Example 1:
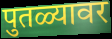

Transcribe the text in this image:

पुतळ्यावर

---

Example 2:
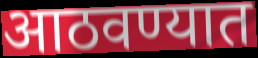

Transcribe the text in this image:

आठवण्यात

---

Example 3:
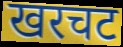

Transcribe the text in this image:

खरचट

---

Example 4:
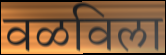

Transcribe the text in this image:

वळविला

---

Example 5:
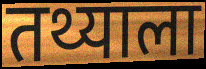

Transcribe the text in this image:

तथ्याला